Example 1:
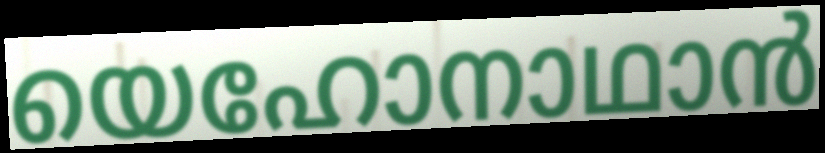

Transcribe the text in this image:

യെഹോനാഥാൻ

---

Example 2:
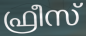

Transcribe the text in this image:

ഫ്രീസ്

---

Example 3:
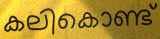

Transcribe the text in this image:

കലികൊണ്ട്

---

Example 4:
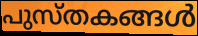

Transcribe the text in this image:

പുസ്തകങ്ങൾ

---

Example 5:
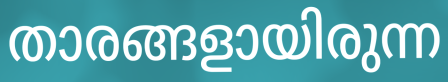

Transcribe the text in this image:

താരങ്ങളായിരുന്ന